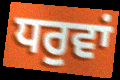
ਧਰੁਵਾਂ